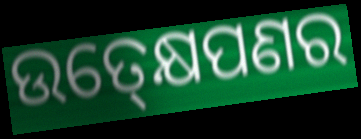
ଉତ୍କ୍ଷେପଣର